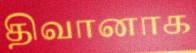
திவானாக